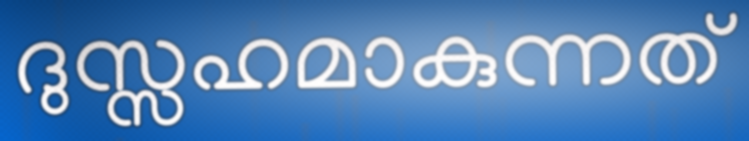
ദുസ്സഹമാകുന്നത്